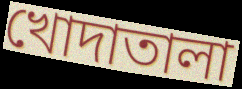
খোদাতালা